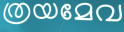
ത്രയമേവ